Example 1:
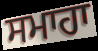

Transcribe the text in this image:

ਸਮਾਹਾ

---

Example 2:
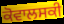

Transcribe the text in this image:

ਕੋਵਾਲਸਕੀ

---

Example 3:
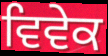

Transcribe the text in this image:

ਵਿਵੇਕ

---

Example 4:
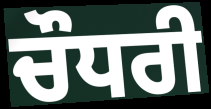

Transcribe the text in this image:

ਚੌਧਰੀ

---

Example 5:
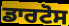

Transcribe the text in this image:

ਡਾਰਟੋਸ